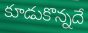
కూడుకొన్నదే